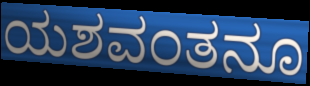
ಯಶವಂತನೂ